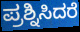
ಪ್ರಶ್ನಿಸಿದರೆ